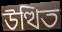
উত্থিত